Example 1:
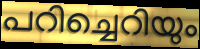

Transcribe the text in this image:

പറിച്ചെറിയും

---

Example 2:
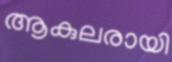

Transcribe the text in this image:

ആകുലരായി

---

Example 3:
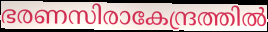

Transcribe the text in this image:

ഭരണസിരാകേന്ദ്രത്തിൽ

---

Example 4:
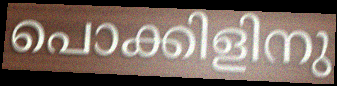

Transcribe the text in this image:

പൊക്കിളിനു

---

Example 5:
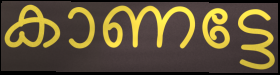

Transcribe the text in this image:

കാണട്ടേ